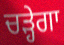
ਚੜ੍ਹੇਗਾ